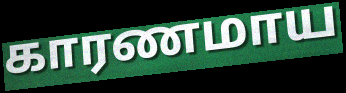
காரணமாய